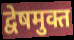
द्वेषमुक्त